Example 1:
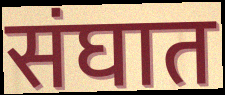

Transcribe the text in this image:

संघात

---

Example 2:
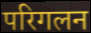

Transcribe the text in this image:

परिगलन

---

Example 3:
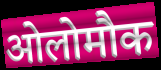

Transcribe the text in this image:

ओलोमौक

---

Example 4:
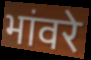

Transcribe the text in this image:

भांवरे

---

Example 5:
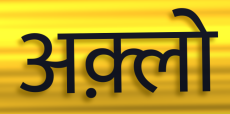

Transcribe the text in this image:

अक़्लो